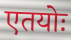
एतयोः